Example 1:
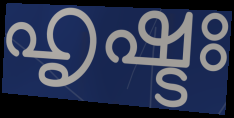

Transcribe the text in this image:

ഹൃഷ്ടഃ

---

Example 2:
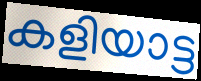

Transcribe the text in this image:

കളിയാട്ട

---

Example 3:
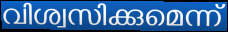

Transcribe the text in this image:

വിശ്വസിക്കുമെന്ന്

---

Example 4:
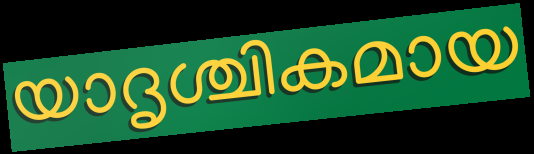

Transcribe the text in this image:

യാദൃശ്ചികമായ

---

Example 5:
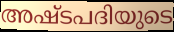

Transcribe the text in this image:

അഷ്ടപദിയുടെ